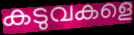
കടുവകളെ